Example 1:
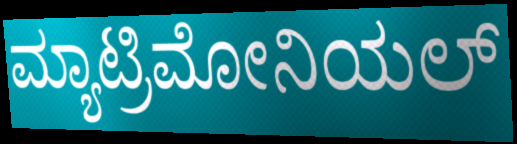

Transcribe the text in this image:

ಮ್ಯಾಟ್ರಿಮೋನಿಯಲ್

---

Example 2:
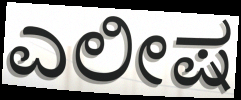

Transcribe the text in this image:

ಎಲೀಷ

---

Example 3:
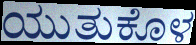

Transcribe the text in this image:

ಯುತುಕೊಳ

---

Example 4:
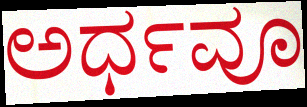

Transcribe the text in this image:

ಅರ್ಧವೂ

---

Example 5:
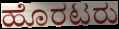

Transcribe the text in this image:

ಹೊರಟರು